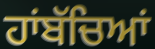
ਹਾਂਬੱਚਿਆਂ